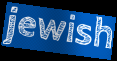
jewish